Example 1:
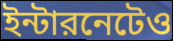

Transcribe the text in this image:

ইন্টারনেটেও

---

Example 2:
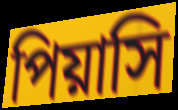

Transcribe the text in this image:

পিয়াসি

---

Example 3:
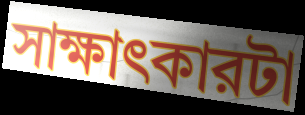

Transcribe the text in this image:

সাক্ষাৎকারটা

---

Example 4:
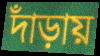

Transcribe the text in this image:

দাঁড়ায়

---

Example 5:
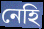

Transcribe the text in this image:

নেহি